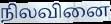
நிலவினை